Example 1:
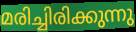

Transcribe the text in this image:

മരിച്ചിരിക്കുന്നു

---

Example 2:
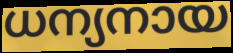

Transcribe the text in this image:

ധന്യനായ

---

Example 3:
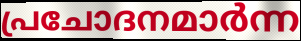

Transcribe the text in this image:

പ്രചോദനമാർന്ന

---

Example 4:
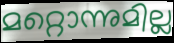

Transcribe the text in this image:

മറ്റൊന്നുമില്ല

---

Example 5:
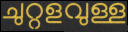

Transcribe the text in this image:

ചുറ്റളവുള്ള